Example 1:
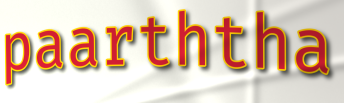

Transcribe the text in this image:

paarththa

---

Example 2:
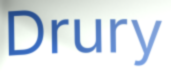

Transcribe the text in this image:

Drury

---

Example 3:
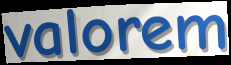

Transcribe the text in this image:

valorem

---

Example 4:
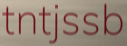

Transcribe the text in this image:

tntjssb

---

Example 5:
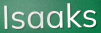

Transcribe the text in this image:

Isaaks